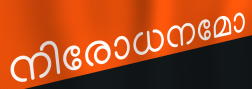
നിരോധനമോ